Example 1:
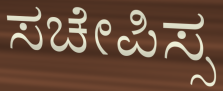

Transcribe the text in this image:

ಸಚೇಪಿಸ್ಸ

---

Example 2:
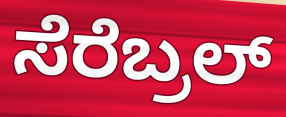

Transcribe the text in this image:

ಸೆರೆಬ್ರಲ್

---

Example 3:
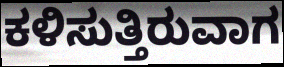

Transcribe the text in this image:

ಕಳಿಸುತ್ತಿರುವಾಗ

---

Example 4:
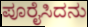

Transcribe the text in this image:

ಪೂರೈಸಿದನು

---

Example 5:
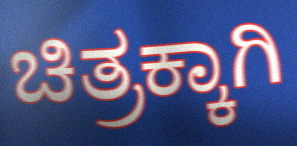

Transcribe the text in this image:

ಚಿತ್ರಕ್ಕಾಗಿ